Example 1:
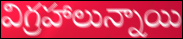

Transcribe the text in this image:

విగ్రహాలున్నాయి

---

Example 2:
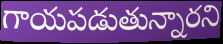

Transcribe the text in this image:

గాయపడుతున్నారని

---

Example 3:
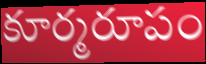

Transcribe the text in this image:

కూర్మరూపం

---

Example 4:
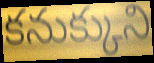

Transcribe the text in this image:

కనుక్కుని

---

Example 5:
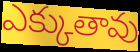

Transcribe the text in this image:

ఎక్కుతావు